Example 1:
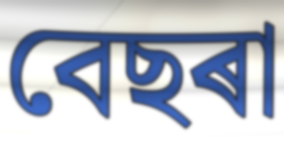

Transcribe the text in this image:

বেছৰা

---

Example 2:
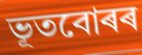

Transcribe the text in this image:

ভূতবোৰৰ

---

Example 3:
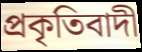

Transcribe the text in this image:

প্ৰকৃতিবাদী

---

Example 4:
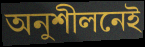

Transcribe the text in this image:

অনুশীলনেই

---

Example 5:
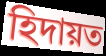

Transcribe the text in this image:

হিদায়ত